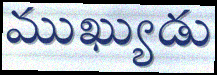
ముఖ్యుడు